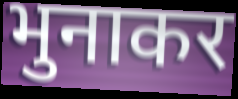
भुनाकर